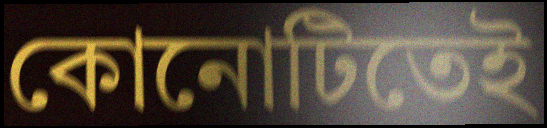
কোনোটিতেই